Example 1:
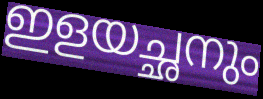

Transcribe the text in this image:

ഇളയച്ഛനും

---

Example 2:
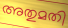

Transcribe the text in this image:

അതുമതി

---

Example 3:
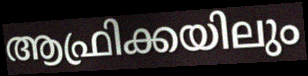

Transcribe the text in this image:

ആഫ്രിക്കയിലും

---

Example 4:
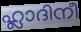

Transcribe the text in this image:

ഹ്ലാദിനീ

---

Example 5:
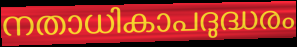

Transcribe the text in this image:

നതാധികാപദുദ്ധരം